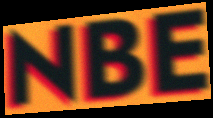
NBE